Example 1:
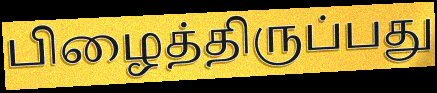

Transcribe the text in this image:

பிழைத்திருப்பது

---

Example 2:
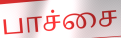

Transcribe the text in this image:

பாச்சை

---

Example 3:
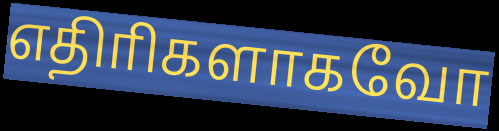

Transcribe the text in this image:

எதிரிகளாகவோ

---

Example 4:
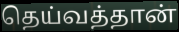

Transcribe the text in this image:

தெய்வத்தான்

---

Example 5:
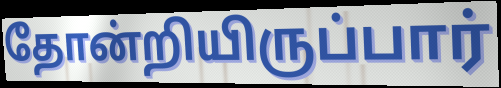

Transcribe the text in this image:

தோன்றியிருப்பார்